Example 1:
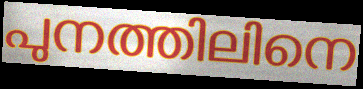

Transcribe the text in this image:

പുനത്തിലിനെ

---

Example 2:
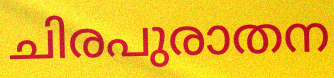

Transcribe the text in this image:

ചിരപുരാതന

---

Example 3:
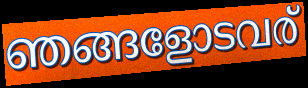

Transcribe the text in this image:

ഞങ്ങളോടവര്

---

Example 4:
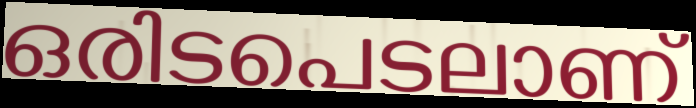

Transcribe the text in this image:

ഒരിടപെടലാണ്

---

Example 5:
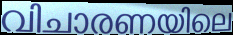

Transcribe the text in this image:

വിചാരണയിലെ